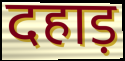
दहाड़